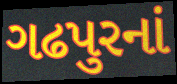
ગઢપુરનાં